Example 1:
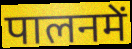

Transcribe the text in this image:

पालनमें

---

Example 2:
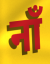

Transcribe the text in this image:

नाँ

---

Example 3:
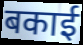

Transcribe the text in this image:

बकाई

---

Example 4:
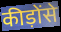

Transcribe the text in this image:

कीड़ोंसे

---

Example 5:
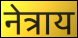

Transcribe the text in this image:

नेत्राय